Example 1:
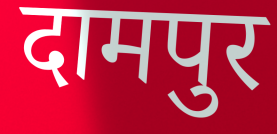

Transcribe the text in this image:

दामपुर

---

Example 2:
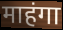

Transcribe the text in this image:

माहंगा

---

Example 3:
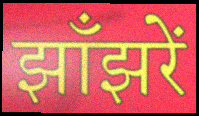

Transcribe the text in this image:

झाँझरें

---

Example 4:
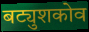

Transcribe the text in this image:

बट्युशकोव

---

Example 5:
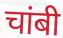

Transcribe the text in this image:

चांबी